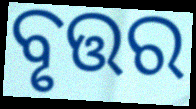
ବୃତ୍ତର